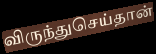
விருந்துசெய்தான்